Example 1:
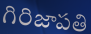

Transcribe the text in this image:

గిరిజాపతి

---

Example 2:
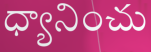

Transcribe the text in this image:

ధ్యానించు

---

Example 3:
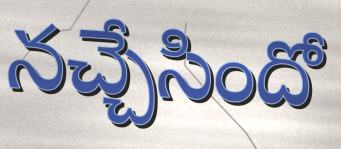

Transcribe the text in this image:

నచ్చేసిందో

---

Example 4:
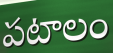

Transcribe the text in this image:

పటాలం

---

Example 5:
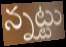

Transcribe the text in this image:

న్నట్టు